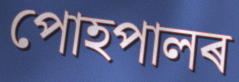
পোহপালৰ